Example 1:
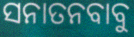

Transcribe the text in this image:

ସନାତନବାବୁ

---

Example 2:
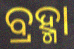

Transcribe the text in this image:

ବ୍ରହ୍ମା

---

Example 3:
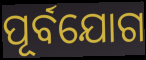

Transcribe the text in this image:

ପୂର୍ବଯୋଗ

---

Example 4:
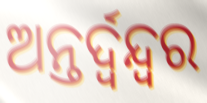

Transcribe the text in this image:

ଅନ୍ତର୍ଦ୍ୱନ୍ଦ୍ୱର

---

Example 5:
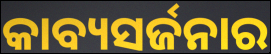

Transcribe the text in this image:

କାବ୍ୟସର୍ଜନାର